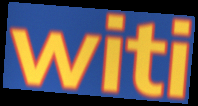
witi